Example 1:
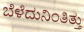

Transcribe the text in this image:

ಬೆಳೆದುನಿಂತಿತ್ತು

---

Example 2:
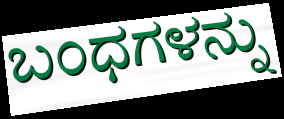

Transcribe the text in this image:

ಬಂಧಗಳನ್ನು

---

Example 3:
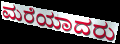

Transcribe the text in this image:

ಮರೆಯಾದರು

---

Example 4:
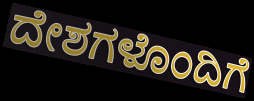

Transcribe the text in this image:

ದೇಶಗಳೊಂದಿಗೆ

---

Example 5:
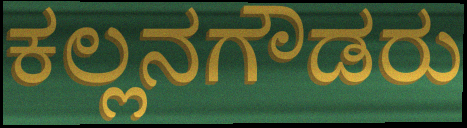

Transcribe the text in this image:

ಕಲ್ಲನಗೌಡರು